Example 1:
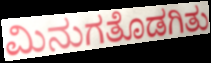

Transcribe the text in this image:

ಮಿನುಗತೊಡಗಿತು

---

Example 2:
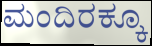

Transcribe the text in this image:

ಮಂದಿರಕ್ಕೂ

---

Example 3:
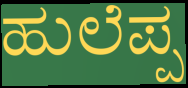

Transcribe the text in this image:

ಹುಲೆಪ್ಪ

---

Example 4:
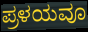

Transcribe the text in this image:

ಪ್ರಳಯವೂ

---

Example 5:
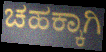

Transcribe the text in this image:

ಚಹಕ್ಕಾಗಿ